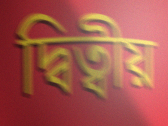
দ্বিত্বীয়